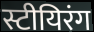
स्टीयिरंग